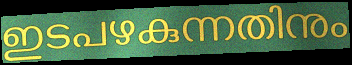
ഇടപഴകുന്നതിനും